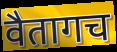
वैतागच